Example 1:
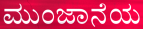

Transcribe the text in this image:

ಮುಂಜಾನೆಯ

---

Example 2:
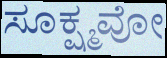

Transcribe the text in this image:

ಸೂಕ್ಷ್ಮವೋ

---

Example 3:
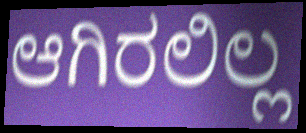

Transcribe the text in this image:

ಆಗಿರಲಿಲ್ಲ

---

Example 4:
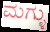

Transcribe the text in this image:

ಮಗ್ಳು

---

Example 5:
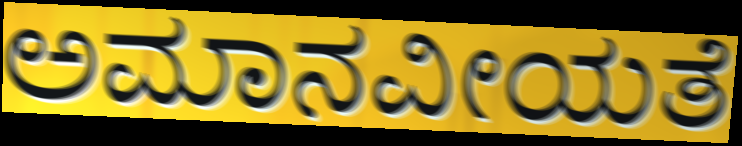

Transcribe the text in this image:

ಅಮಾನವೀಯತೆ